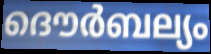
ദൌർബല്യം